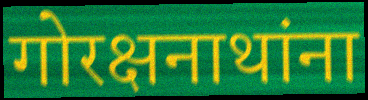
गोरक्षनाथांना